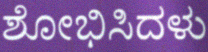
ಶೋಭಿಸಿದಳು